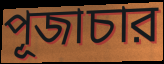
পূজাচার